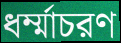
ধর্ম্মাচরণ